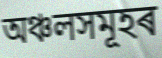
অঞ্চলসমূহৰ